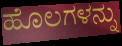
ಹೊಲಗಳನ್ನು